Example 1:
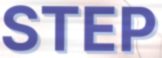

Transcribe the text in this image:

STEP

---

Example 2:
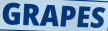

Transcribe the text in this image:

GRAPES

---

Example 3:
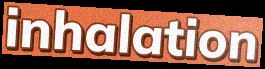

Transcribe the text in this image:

inhalation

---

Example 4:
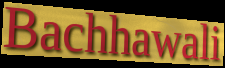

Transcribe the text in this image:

Bachhawali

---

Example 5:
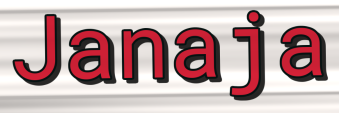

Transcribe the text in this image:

Janaja